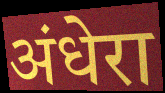
अंधेरा